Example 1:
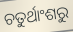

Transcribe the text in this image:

ଚତୁର୍ଥାଂଶରୁ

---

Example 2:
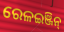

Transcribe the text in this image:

ରେଳଇଞ୍ଜିନ୍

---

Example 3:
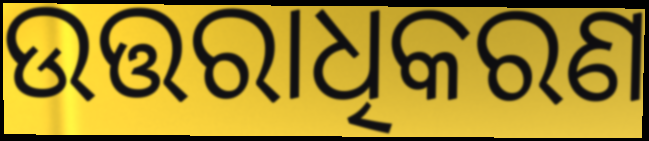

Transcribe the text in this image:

ଉତ୍ତରାଧିକରଣ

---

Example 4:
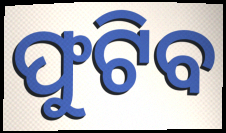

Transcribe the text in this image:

ଫୁଟିବ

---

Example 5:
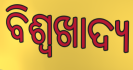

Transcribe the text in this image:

ବିଶ୍ୱଖାଦ୍ୟ